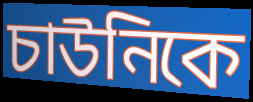
চাউনিকে